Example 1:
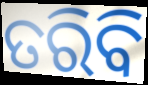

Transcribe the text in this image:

ତରିବି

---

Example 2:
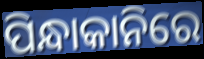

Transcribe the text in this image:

ପିନ୍ଧାକାନିରେ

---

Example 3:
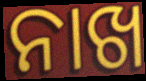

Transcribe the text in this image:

ନାଖ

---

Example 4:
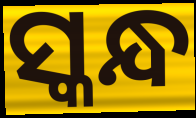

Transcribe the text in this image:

ସ୍କନ୍ଧ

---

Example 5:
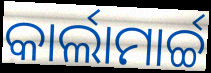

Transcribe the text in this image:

କାର୍ଲାମାର୍ଚ୍ଚ